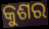
କୁଶର